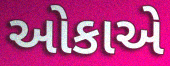
ઓકાએ